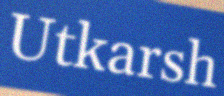
Utkarsh